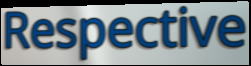
Respective